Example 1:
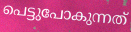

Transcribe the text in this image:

പെട്ടുപോകുന്നത്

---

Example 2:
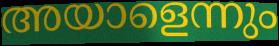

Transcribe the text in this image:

അയാളെന്നും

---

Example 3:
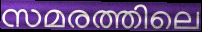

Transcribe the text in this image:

സമരത്തിലെ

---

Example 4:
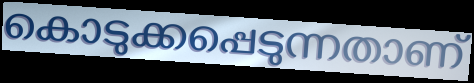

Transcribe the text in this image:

കൊടുക്കപ്പെടുന്നതാണ്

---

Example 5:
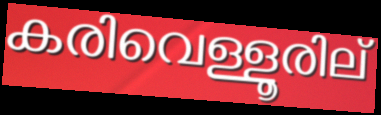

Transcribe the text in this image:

കരിവെള്ളൂരില്